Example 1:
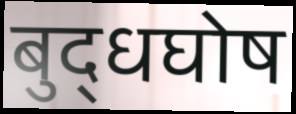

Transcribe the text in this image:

बुद्धघोष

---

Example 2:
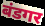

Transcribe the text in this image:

बंडगर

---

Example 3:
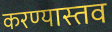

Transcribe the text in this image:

करण्यास्तव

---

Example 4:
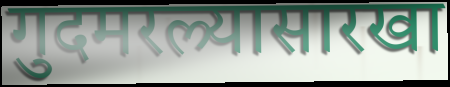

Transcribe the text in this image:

गुदमरल्यासारखा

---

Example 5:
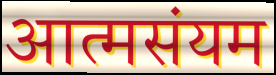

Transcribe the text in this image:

आत्मसंयम